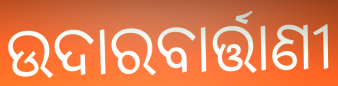
ଉଦାରବାର୍ତ୍ତାଣୀ